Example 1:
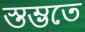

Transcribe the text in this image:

স্তম্ভতে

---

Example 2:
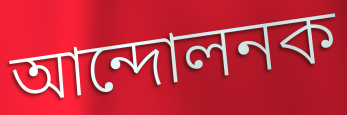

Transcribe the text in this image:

আন্দোলনক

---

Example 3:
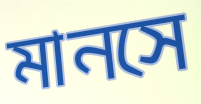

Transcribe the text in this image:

মানসে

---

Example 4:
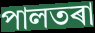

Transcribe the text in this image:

পালতৰা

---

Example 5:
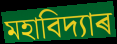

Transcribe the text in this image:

মহাবিদ্যাৰ